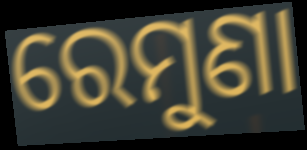
ରେମୁଣା